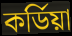
কর্ডিয়া